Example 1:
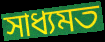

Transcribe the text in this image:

সাধ্যমত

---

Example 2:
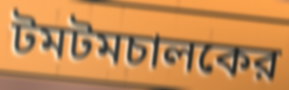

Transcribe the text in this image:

টমটমচালকের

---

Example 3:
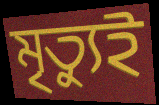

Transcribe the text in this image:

মৃত্যুই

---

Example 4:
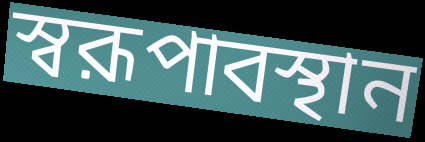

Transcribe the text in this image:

স্বরূপাবস্থান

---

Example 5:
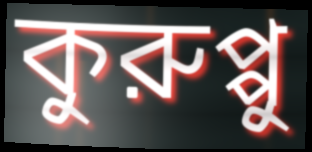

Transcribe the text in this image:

কুরুপ্পু